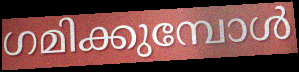
ഗമിക്കുമ്പോൾ